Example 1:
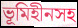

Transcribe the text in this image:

ভূমিহীনসহ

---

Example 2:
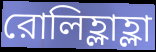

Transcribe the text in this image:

রোলিহ্লাহ্লা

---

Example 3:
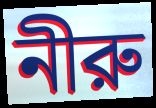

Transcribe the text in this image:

নীরু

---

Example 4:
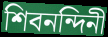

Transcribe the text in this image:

শিবনন্দিনী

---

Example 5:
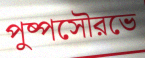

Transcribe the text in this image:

পুষ্পসৌরভে